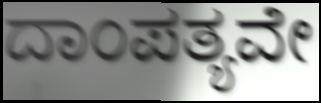
ದಾಂಪತ್ಯವೇ